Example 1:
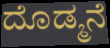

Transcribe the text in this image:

ದೊಡ್ಮನೆ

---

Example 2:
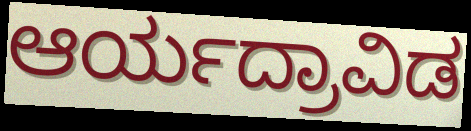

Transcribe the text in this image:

ಆರ್ಯದ್ರಾವಿಡ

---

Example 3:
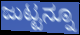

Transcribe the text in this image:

ಜುಟ್ಟನ್ನೂ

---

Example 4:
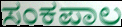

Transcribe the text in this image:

ಸಂಕಪಾಲ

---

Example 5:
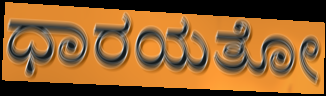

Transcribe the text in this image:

ಧಾರಯತೋ